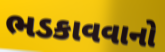
ભડકાવવાનો